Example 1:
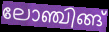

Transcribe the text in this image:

ലോഞ്ചിങ്ങ്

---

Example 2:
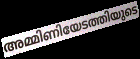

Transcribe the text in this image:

അമ്മിണിയേടത്തിയുടെ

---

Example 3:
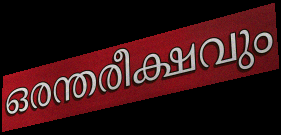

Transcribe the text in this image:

ഒരന്തരീക്ഷവും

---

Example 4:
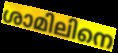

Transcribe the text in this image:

ശാമിലിനെ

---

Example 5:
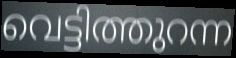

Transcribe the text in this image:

വെട്ടിത്തുറന്ന